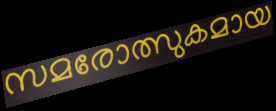
സമരോത്സുകമായ